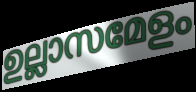
ഉല്ലാസമേളം